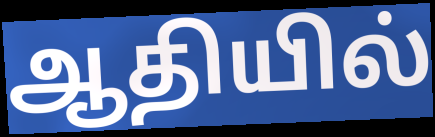
ஆதியில்